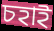
চহাই